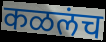
कळलंच